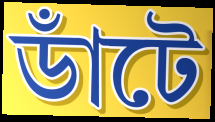
ডাঁটে